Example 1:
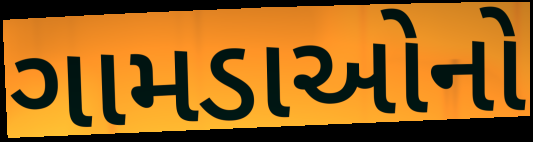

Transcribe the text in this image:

ગામડાઓનો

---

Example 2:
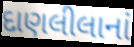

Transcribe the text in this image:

દાણલીલાનાં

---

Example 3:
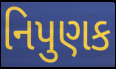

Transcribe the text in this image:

નિપુણક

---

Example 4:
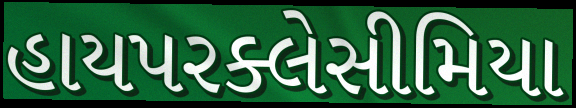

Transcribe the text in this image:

હાયપરક્લેસીમિયા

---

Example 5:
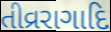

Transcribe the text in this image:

તીવ્રરાગાદિ